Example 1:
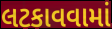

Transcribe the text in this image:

લટકાવવામાં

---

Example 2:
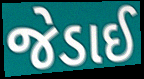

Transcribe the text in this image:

જેડાઈ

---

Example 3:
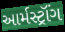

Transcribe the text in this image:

આર્મસ્ટ્રૉંગ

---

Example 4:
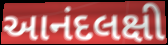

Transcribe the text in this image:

આનંદલક્ષી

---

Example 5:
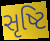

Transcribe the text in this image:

સૃષ્ટિ